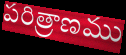
పరిత్రాణము